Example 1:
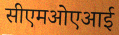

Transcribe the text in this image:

सीएमओएआई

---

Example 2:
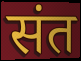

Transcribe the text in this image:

संत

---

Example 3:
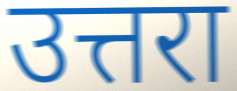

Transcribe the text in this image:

उत्तरा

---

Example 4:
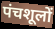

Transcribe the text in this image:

पंचशूलों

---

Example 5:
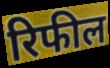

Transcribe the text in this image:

रिफील